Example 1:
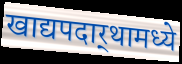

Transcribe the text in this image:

खाद्यपदार्थामध्ये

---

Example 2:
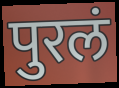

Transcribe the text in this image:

पुरलं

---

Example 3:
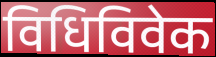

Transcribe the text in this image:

विधिविवेक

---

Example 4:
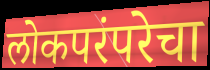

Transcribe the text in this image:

लोकपरंपरेचा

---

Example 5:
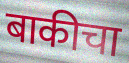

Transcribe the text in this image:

बाकीचा